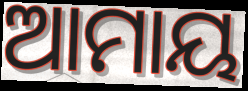
ଆମାୟ